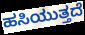
ಹಸಿಯುತ್ತದೆ